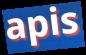
apis